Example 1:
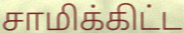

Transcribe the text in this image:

சாமிக்கிட்ட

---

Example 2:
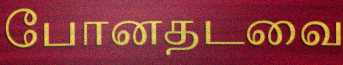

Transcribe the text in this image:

போனதடவை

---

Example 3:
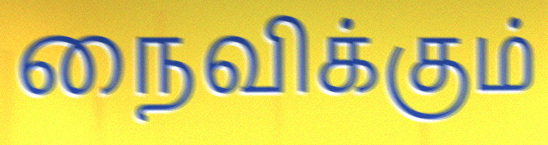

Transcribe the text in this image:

நைவிக்கும்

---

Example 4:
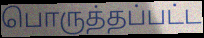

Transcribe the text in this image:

பொருத்தப்பட்ட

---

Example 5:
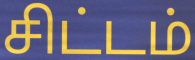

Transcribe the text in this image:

சிட்டம்